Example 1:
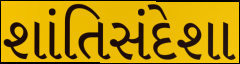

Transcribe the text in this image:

શાંતિસંદેશા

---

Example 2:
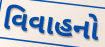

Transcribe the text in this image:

વિવાહનો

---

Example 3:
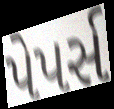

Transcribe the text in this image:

પેપર્સ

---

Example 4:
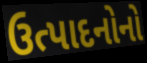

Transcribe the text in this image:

ઉત્પાદનોનો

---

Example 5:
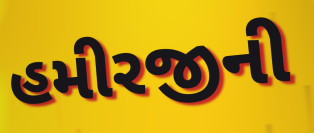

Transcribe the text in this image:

હમીરજીની